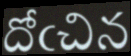
దోఁచిన